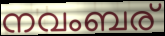
നവംബര്